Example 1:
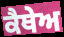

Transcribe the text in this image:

ਕੈਥੇਅ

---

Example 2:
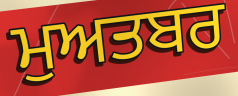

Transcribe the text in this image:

ਮੁਅਤਬਰ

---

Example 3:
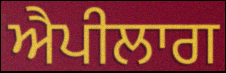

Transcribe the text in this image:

ਐਪੀਲਾਗ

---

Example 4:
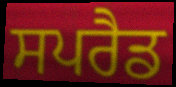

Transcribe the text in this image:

ਸਪਰੈਡ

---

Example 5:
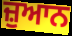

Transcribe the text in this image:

ਜ਼ੁਆਨ